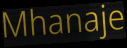
Mhanaje